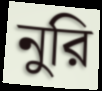
নুরি